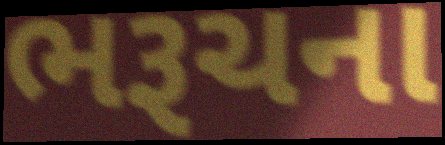
ભરૂચના